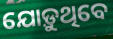
ଯୋଡ଼ୁଥିବେ